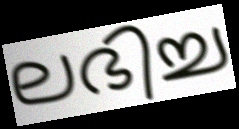
ലഭിച്ച